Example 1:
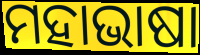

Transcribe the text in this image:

ମହାଭାଷା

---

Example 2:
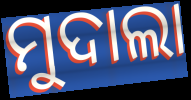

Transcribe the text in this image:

ମୁଦାଲା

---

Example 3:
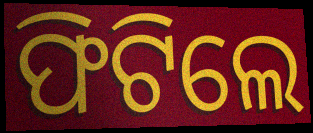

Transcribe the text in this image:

ଫିଟିଲେ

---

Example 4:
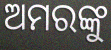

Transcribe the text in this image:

ଅମରଙ୍କୁ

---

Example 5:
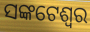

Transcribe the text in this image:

ସଙ୍କଟେଶ୍ୱର